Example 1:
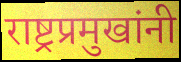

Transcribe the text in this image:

राष्ट्रप्रमुखांनी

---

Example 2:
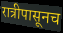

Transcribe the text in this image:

रात्रीपासूनच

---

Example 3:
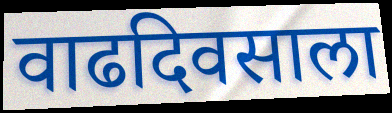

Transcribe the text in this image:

वाढदिवसाला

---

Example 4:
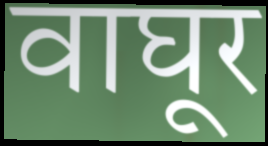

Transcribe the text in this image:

वाघूर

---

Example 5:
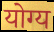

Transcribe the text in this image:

योग्य